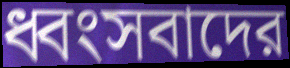
ধ্বংসবাদের